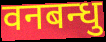
वनबन्धु